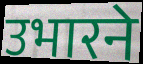
उभारने